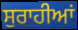
ਸੁਰਾਹੀਆਂ